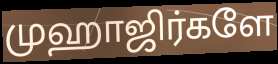
முஹாஜிர்களே